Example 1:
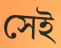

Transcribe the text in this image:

সেই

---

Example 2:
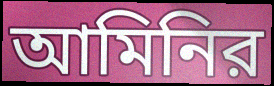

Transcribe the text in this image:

আমিনির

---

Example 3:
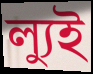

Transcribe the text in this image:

ল্যুই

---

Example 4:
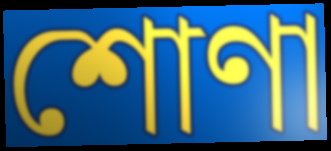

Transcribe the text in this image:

শোণা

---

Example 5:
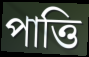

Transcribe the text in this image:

পাত্তি